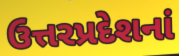
ઉત્તરપ્રદેશનાં